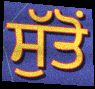
ਸੁੱਤੋਂ